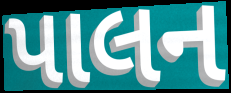
પાલન